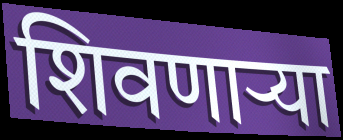
शिवणाऱ्या